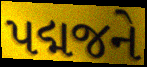
પદ્મજને